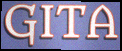
GITA